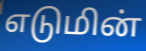
எடுமின்